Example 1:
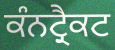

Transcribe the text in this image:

ਕੰਨਟ੍ਰੈਕਟ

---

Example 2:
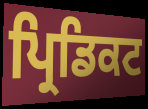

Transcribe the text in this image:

ਪ੍ਰਿਡਿਕਟ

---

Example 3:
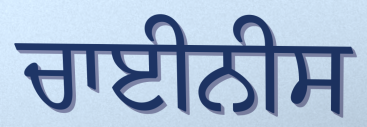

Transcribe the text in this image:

ਚਾਈਨੀਸ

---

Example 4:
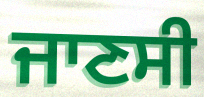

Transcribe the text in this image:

ਜਾਣਸੀ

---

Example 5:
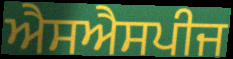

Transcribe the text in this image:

ਐਸਐਸਪੀਜ